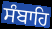
ਸੰਬਾਹਿ